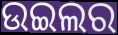
ଉଇଲର